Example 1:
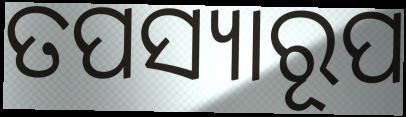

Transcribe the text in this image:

ତପସ୍ୟାରୂପ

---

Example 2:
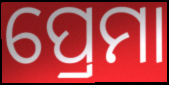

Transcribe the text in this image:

ପ୍ରେମା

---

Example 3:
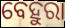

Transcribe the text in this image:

ବେହୁରା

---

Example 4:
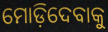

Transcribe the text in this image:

ମୋଡ଼ିଦେବାକୁ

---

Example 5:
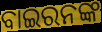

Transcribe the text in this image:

ବାଇରନଙ୍କ